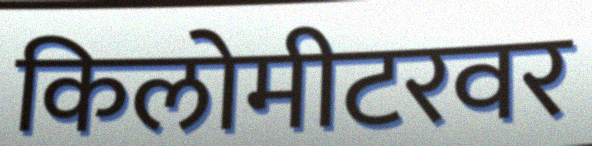
किलोमीटरवर